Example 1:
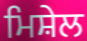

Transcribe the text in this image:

ਮਿਸ਼ੇਲ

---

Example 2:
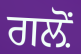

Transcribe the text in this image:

ਗਲ਼ੋਂ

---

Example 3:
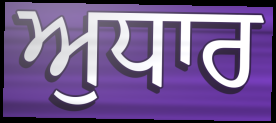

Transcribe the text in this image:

ਅੁਧਾਰ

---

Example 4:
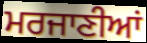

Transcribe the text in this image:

ਮਰਜਾਣੀਆਂ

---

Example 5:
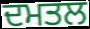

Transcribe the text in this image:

ਦਮਤਲ